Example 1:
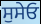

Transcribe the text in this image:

ਸੁਸੇਓ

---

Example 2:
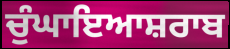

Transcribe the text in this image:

ਚੁੰਘਾਇਆਸ਼ਰਾਬ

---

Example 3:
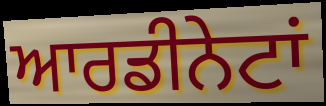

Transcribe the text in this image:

ਆਰਡੀਨੇਟਾਂ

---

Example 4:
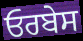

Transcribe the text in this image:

ਓਰਬੇਸ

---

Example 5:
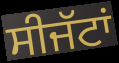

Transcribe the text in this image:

ਸੀਜੱਟਾਂ